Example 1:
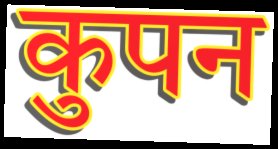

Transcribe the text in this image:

कुपन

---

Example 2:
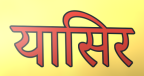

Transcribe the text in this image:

यासिर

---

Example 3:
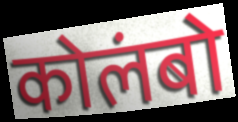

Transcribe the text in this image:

कोलंबो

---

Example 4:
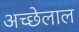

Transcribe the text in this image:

अच्छेलाल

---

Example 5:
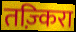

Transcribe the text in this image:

तज़्किरा